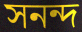
সনন্দ